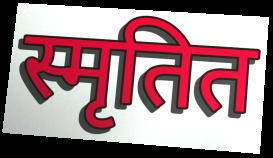
स्मृतित